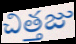
చిత్తజు